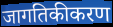
जागतिकीकरण